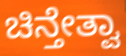
ಚಿನ್ತೇತ್ವಾ